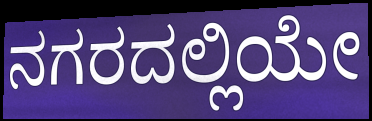
ನಗರದಲ್ಲಿಯೇ